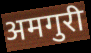
अमगुरी